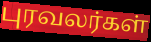
புரவலர்கள்